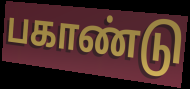
பகாண்டு